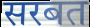
सरबत